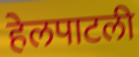
हेलपाटली